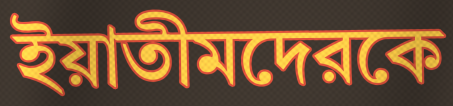
ইয়াতীমদেরকে